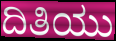
ದಿತಿಯು